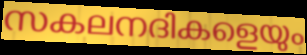
സകലനദികളെയും